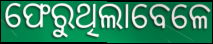
ଫେରୁଥିଲାବେଳେ